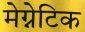
मेग्नेटिक